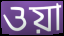
ওয়া